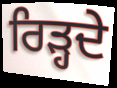
ਰਿੜ੍ਹਦੇ